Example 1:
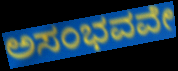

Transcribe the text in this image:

ಅಸಂಭವವೇ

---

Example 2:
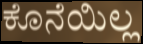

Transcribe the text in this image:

ಕೊನೆಯಿಲ್ಲ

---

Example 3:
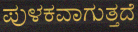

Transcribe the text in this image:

ಪುಳಕವಾಗುತ್ತದೆ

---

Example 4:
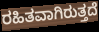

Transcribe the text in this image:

ರಹಿತವಾಗಿರುತ್ತದೆ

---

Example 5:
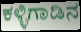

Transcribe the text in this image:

ಕಳ್ಳಿಗಾಡಿನ